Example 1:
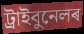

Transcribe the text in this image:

ট্ৰাইবুনেলৰ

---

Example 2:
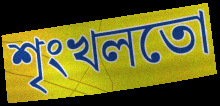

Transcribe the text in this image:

শৃংখলতো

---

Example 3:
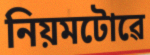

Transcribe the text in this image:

নিয়মটোৱে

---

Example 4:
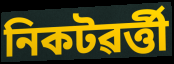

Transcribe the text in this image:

নিকটৱৰ্ত্তী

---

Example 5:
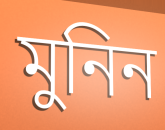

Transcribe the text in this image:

মুনিন